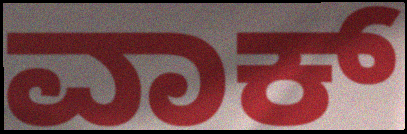
ವಾಕ್